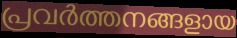
പ്രവർത്തനങ്ങളായ